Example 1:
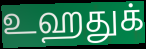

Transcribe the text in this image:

உஹதுக்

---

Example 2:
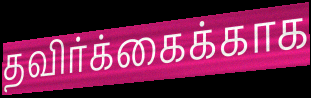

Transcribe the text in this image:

தவிர்க்கைக்காக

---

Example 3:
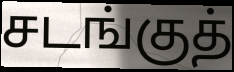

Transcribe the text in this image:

சடங்குத்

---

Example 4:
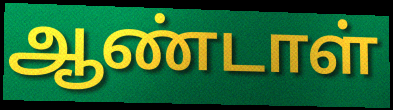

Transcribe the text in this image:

ஆண்டாள்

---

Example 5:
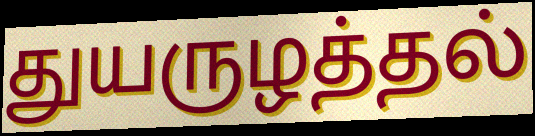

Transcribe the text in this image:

துயருழத்தல்